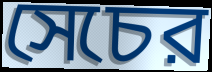
সেচের